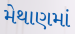
મેથાણમાં